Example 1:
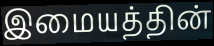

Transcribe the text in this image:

இமையத்தின்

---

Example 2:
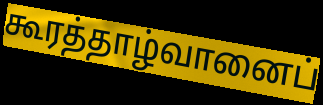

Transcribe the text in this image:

கூரத்தாழ்வானைப்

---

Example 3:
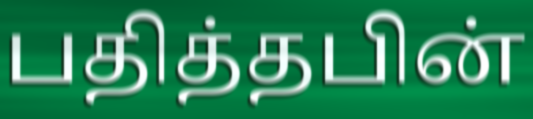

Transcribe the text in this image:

பதித்தபின்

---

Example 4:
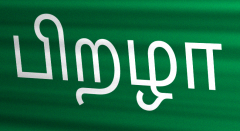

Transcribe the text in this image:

பிறழா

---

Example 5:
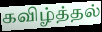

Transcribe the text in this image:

கவிழ்த்தல்